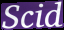
Scid